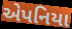
એપનિયા